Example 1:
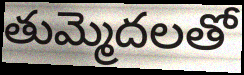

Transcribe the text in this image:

తుమ్మెదలతో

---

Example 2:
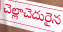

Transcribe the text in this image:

చెల్లాచెదురైన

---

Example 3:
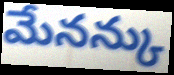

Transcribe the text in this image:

మేనన్కు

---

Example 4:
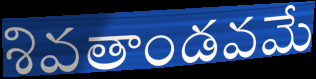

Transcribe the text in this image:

శివతాండవమే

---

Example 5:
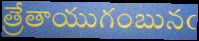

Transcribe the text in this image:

త్రేతాయుగంబునఁ